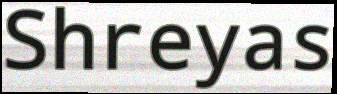
Shreyas